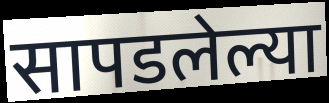
सापडलेल्या